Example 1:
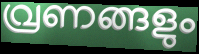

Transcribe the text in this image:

വ്രണങ്ങളും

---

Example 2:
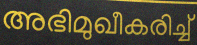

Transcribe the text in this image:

അഭിമുഖീകരിച്ച്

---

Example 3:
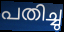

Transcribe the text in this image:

പതിച്ചു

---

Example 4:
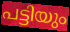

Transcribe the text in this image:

പട്ടിയും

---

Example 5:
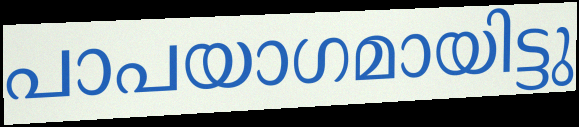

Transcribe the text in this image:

പാപയാഗമായിട്ടു